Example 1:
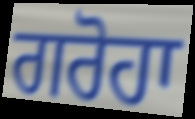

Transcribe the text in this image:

ਗਰੋਹਾ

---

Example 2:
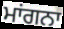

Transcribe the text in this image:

ਮਾਂਗਨਾ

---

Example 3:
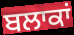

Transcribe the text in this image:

ਬਲਾਕਾਂ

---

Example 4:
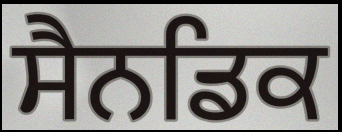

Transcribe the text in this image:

ਸੈਨਡਿਕ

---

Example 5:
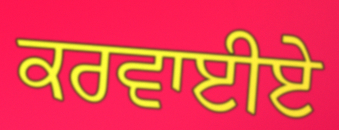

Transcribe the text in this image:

ਕਰਵਾਈਏ